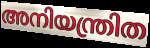
അനിയന്ത്രിത